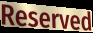
Reserved